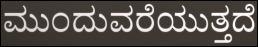
ಮುಂದುವರೆಯುತ್ತದೆ